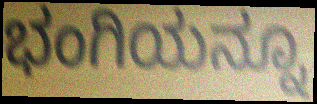
ಭಂಗಿಯನ್ನೂ